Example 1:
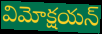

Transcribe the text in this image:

విమోక్షయన్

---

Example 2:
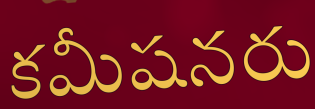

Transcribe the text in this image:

కమీషనరు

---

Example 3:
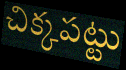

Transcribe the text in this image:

చిక్కపట్టు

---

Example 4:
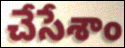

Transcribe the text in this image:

చేసేశాం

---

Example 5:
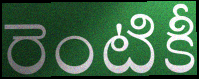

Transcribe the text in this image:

రెంటికీ